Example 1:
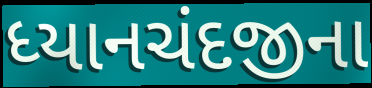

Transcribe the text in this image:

ધ્યાનચંદજીના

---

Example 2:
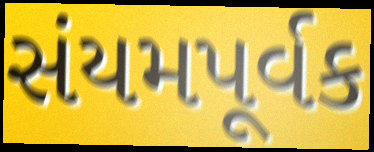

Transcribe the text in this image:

સંયમપૂર્વક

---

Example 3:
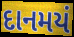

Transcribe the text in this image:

દાનમયં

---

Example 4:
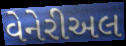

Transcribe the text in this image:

વેનેરીઅલ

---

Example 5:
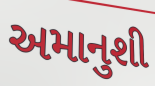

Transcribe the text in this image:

અમાનુશી